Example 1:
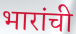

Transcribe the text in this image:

भारांची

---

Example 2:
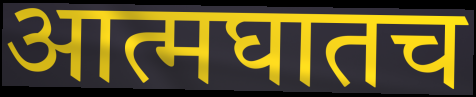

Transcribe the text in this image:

आत्मघातच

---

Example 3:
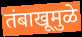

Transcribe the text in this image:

तंबाखूमुळे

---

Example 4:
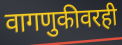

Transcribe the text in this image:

वागणुकीवरही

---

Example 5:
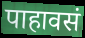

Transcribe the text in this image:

पाहावसं